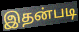
இதன்படி